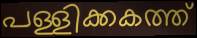
പള്ളിക്കകത്ത്